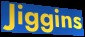
Jiggins